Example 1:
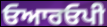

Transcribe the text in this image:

ਓਆਰਓਪੀ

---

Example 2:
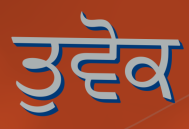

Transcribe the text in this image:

ਤੁਵੋਕ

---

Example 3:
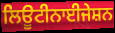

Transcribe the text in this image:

ਲਿਊਟੀਨਾਈਜੇਸ਼ਨ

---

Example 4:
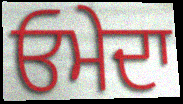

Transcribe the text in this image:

ਓਮੇਦਾ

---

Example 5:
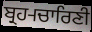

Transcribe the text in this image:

ਬ੍ਰਹ੍ਮਚਾਰਿਣੀ